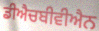
ਡੀਐਚਬੀਵੀਐਨ